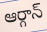
ఆర్గాన్